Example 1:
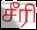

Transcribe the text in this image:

சீரி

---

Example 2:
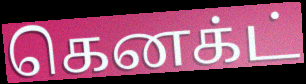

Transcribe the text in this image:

கெனக்ட்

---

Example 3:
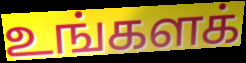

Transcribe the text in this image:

உங்களக்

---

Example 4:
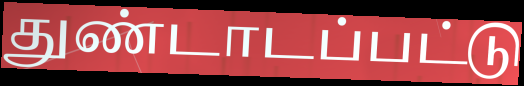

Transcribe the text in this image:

துண்டாடப்பட்டு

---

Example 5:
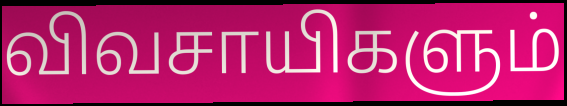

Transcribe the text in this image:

விவசாயிகளும்